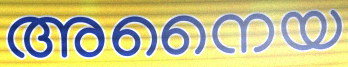
അനൈയ